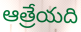
ఆత్రేయది